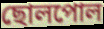
ছোলপোল